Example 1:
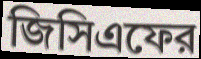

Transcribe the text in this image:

জিসিএফের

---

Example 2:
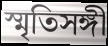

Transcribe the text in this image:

স্মৃতিসঙ্গী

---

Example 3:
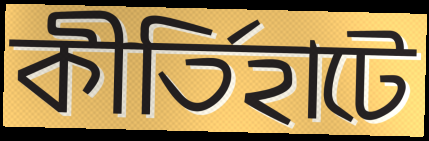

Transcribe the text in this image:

কীর্তিহাটে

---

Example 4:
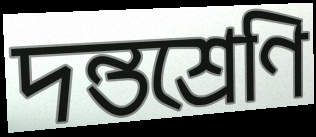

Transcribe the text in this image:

দন্তশ্রেণি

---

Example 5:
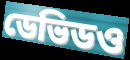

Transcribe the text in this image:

ডেভিডও